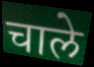
चाले